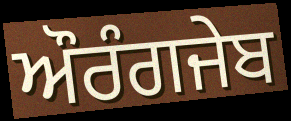
ਔਰੰਗਜੇਬ